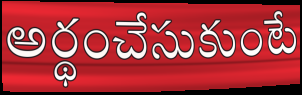
అర్థంచేసుకుంటే